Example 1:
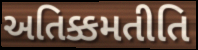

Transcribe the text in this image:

અતિક્કમતીતિ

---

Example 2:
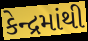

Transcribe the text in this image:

કેન્દ્રમાંથી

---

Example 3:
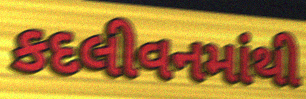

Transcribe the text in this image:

કદલીવનમાંથી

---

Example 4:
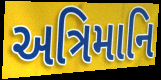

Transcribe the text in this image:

અત્રિમાનિ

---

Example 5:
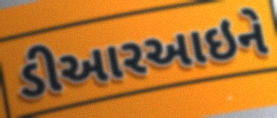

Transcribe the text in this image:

ડીઆરઆઇને